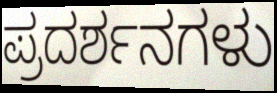
ಪ್ರದರ್ಶನಗಳು